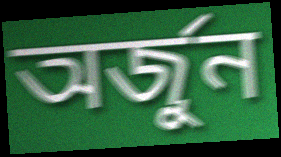
অর্জুন